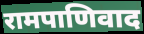
रामपाणिवाद